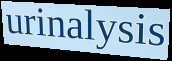
urinalysis